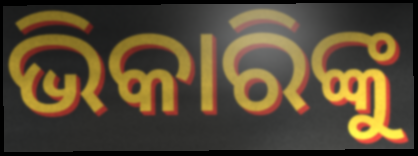
ଭିକାରିଙ୍କୁ